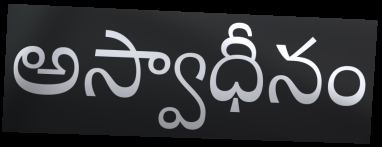
అస్వాధీనం